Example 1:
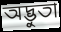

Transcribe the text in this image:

অদ্ভুতা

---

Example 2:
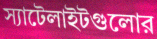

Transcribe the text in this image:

স্যাটেলাইটগুলোর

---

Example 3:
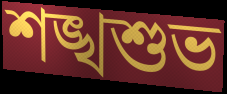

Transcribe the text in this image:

শঙ্খশুভ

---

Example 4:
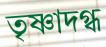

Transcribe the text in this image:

তৃষ্ণাদগ্ধ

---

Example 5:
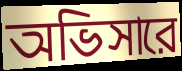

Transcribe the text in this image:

অভিসারে